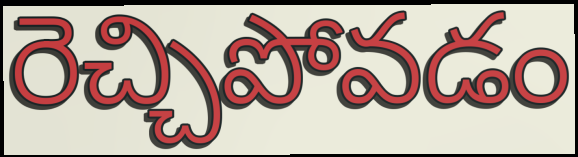
రెచ్చిపోవడం